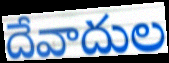
దేవాదుల